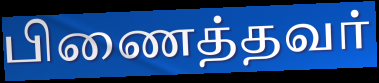
பிணைத்தவர்